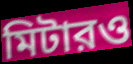
মিটারও